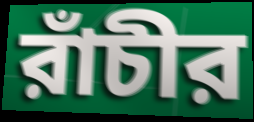
রাঁচীর